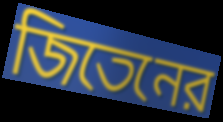
জিতেনের